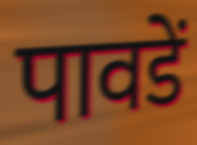
पावडें